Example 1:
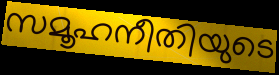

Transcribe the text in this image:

സമൂഹനീതിയുടെ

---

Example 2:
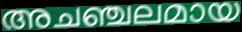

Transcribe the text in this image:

അചഞ്ചലമായ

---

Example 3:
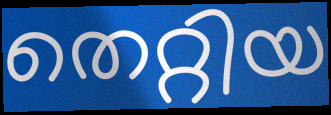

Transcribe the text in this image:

തെറ്റിയ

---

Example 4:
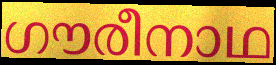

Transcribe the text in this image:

ഗൗരീനാഥ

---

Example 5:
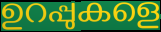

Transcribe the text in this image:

ഉറപ്പുകളെ